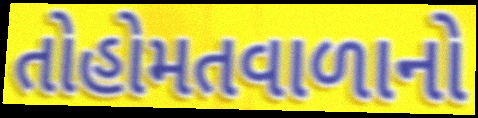
તોહોમતવાળાનો